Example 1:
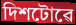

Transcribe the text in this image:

দিশটোৱে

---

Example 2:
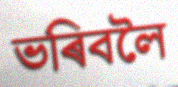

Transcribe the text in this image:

ভৰিবলৈ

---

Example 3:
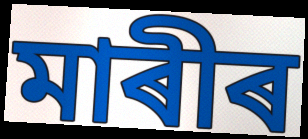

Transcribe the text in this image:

মাৰীৰ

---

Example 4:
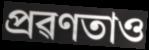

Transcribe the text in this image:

প্ৰৱণতাও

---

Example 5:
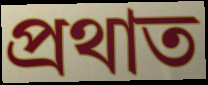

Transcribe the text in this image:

প্ৰথাত